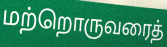
மற்றொருவரைத்